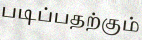
படிப்பதற்கும்